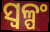
ସ୍ୱଳ୍ପଂ